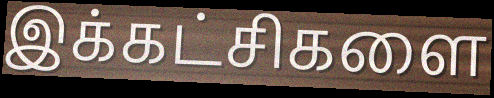
இக்கட்சிகளை